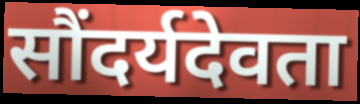
सौंदर्यदेवता